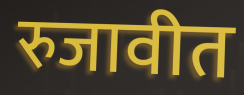
रुजावीत